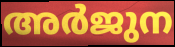
അർജുന